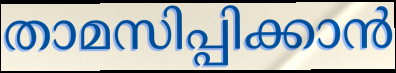
താമസിപ്പിക്കാൻ